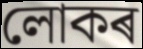
লোকৰ